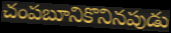
చంపబూనికొనినపుడు